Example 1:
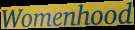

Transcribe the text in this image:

Womenhood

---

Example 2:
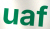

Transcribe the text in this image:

uaf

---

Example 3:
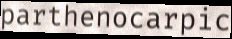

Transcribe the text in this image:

parthenocarpic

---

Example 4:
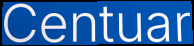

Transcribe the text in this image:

Centuar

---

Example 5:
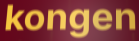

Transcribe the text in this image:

kongen